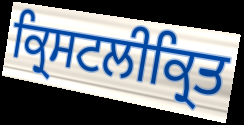
ਕ੍ਰਿਸਟਲੀਕ੍ਰਿਤ